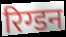
रिग्डन